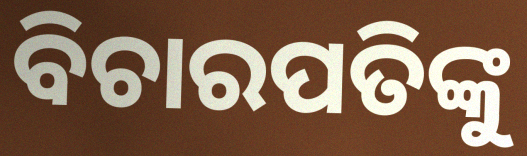
ବିଚାରପତିଙ୍କୁ